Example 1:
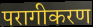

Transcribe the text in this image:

परागीकरण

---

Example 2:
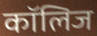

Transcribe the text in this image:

कॉलिज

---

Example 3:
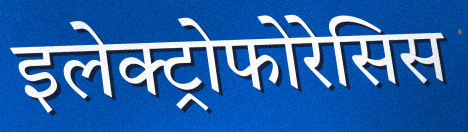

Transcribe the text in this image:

इलेक्ट्रोफोरेसिस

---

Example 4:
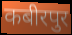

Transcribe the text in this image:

कबीरपुर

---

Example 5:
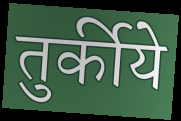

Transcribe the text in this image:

तुर्कीये